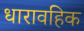
धारावहिक